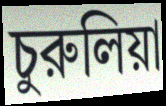
চুরুলিয়া